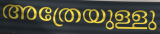
അത്രേയുള്ളു